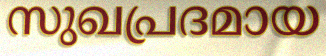
സുഖപ്രദമായ